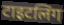
टाइटलिंग